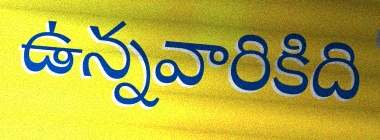
ఉన్నవారికిది